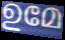
ഉമേ